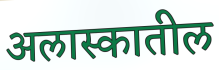
अलास्कातील